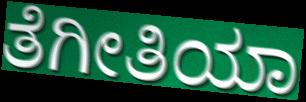
ತೆಗೀತಿಯಾ